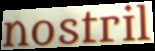
nostril